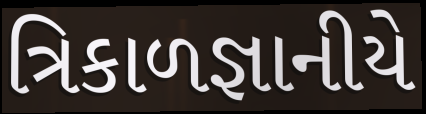
ત્રિકાળજ્ઞાનીયે